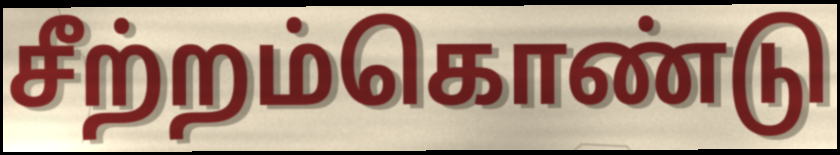
சீற்றம்கொண்டு